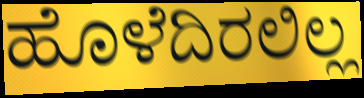
ಹೊಳೆದಿರಲಿಲ್ಲ